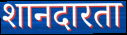
शानदारता